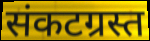
संकटग्रस्त